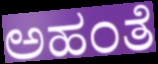
ಅಹಂತೆ